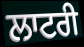
ਲਾਟਰੀ